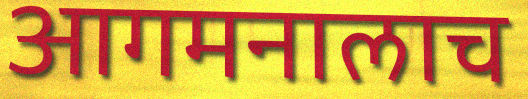
आगमनालाच